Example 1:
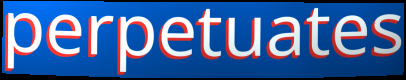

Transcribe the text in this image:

perpetuates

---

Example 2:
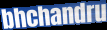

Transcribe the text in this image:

bhchandru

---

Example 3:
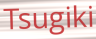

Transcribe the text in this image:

Tsugiki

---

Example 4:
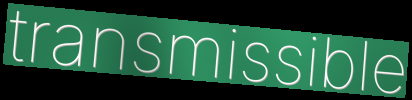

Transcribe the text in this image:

transmissible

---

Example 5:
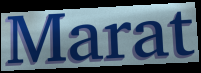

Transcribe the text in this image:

Marat